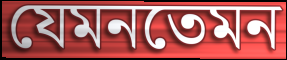
যেমনতেমন